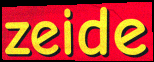
zeide